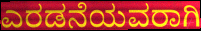
ಎರಡನೆಯವರಾಗಿ